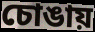
চোঙায়